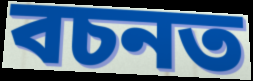
বচনত